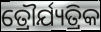
ତ୍ରୌର୍ଯ୍ୟତ୍ରିକ